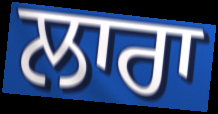
ਲਾਰਾ